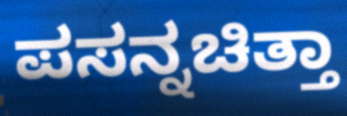
ಪಸನ್ನಚಿತ್ತಾ